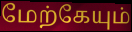
மேற்கேயும்